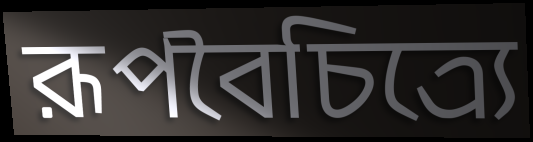
রূপবৈচিত্র্যে